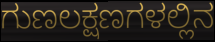
ಗುಣಲಕ್ಷಣಗಳಲ್ಲಿನ